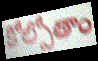
కోల్పోతాం